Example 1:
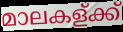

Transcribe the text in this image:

മാലകള്ക്ക്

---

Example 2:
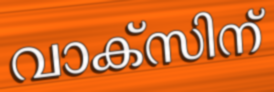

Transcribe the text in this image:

വാക്സിന്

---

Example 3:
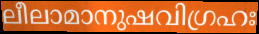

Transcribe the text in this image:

ലീലാമാനുഷവിഗ്രഹഃ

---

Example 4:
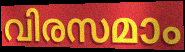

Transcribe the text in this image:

വിരസമാം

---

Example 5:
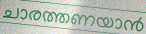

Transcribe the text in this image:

ചാരത്തണയാൻ